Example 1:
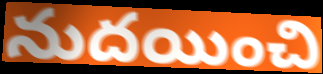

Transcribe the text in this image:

నుదయించి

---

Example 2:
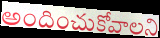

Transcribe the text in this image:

అందించుకోవాలని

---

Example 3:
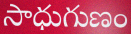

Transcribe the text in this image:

సాధుగుణం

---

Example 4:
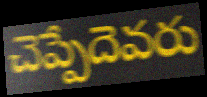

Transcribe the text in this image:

చెప్పేదెవరు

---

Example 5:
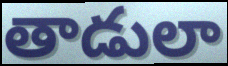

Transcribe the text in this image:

తాడులా